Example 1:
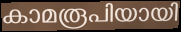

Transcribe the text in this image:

കാമരൂപിയായി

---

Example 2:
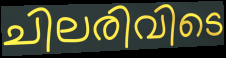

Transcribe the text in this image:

ചിലരിവിടെ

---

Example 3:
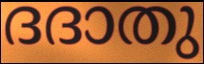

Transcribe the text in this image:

ദദാതു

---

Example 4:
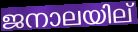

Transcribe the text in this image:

ജനാലയില്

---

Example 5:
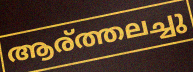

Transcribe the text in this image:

ആര്ത്തലച്ചു